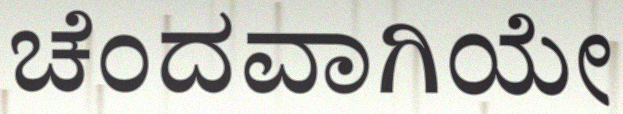
ಚೆಂದವಾಗಿಯೇ